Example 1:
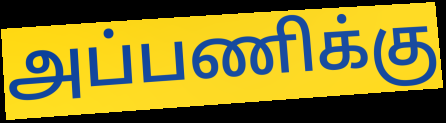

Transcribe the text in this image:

அப்பணிக்கு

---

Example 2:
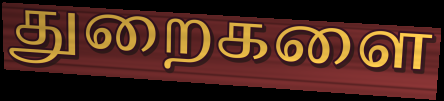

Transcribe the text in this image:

துறைகளை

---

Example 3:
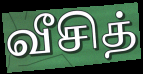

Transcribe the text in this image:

வீசித்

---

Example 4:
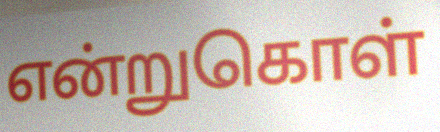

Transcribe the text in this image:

என்றுகொள்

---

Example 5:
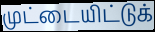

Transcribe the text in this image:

முட்டையிட்டுக்